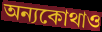
অন্যকোথাও